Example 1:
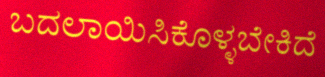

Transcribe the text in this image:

ಬದಲಾಯಿಸಿಕೊಳ್ಳಬೇಕಿದೆ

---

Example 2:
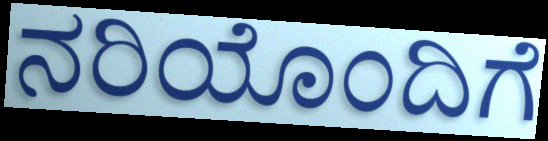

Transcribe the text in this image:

ನರಿಯೊಂದಿಗೆ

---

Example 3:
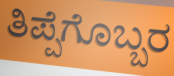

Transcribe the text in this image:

ತಿಪ್ಪೆಗೊಬ್ಬರ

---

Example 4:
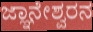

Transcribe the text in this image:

ಜ್ಞಾನೇಶ್ವರನ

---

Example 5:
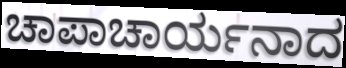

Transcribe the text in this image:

ಚಾಪಾಚಾರ್ಯನಾದ